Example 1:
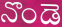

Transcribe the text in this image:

నొండె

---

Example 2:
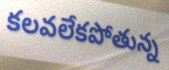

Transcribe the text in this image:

కలవలేకపోతున్న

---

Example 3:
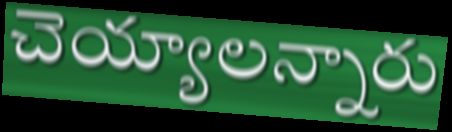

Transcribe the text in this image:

చెయ్యాలన్నారు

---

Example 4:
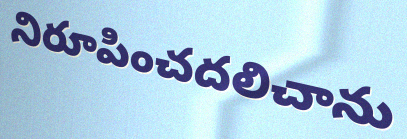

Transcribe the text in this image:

నిరూపించదలిచాను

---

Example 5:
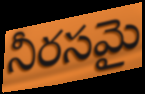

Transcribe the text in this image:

నీరసమై